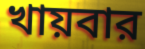
খায়বার